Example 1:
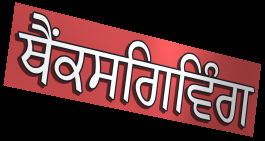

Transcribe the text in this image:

ਥੈਂਕਸਗਿਵਿੰਗ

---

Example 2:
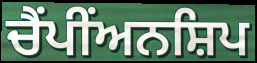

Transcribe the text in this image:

ਚੈਂਪੀਂਅਨਸ਼ਿਪ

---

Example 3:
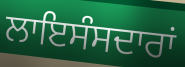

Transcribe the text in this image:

ਲਾਇਸੰਸਦਾਰਾਂ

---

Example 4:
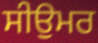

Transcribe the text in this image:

ਸੀਉਮਰ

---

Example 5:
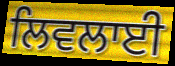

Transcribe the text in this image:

ਲਿਵਲਾਈ